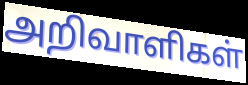
அறிவாளிகள்